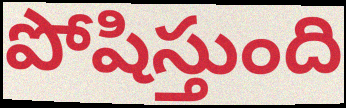
పోషిస్తుంది